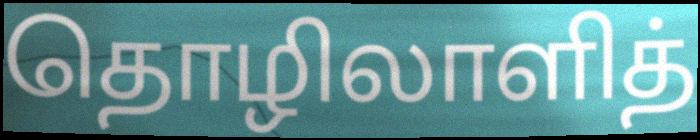
தொழிலாளித்